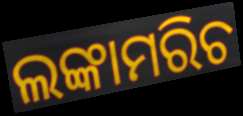
ଲଙ୍କାମରିଚ